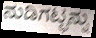
ನುಡಿಗಟ್ಟನ್ನು